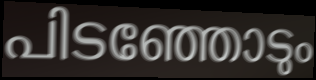
പിടഞ്ഞോടും